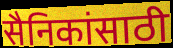
सैनिकांसाठी